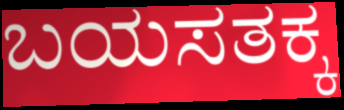
ಬಯಸತಕ್ಕ